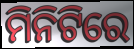
ମିନିଟିରେ